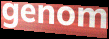
genom